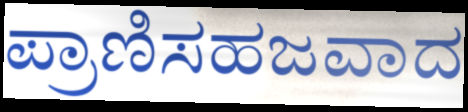
ಪ್ರಾಣಿಸಹಜವಾದ